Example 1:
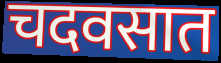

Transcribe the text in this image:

चदवसात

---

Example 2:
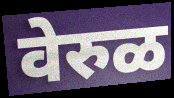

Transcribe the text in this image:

वेरुळ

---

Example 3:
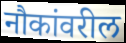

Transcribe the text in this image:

नौकांवरील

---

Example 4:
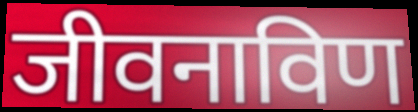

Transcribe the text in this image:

जीवनाविण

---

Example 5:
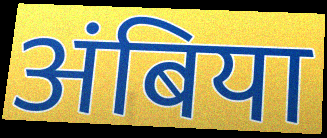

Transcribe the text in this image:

अंबिया